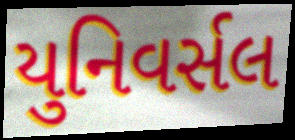
યુનિવર્સલ